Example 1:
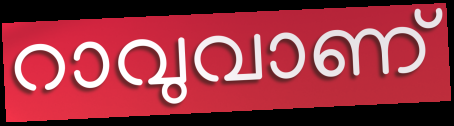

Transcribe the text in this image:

റാവുവാണ്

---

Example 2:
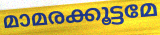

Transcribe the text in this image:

മാമരക്കൂട്ടമേ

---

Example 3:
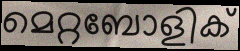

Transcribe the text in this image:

മെറ്റബോളിക്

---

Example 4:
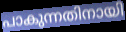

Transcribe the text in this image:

പാകുന്നതിനായി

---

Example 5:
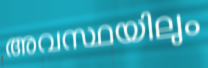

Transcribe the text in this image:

അവസ്ഥയിലും